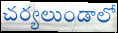
చర్యలుండాలో